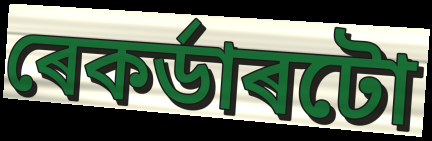
ৰেকৰ্ডাৰটো